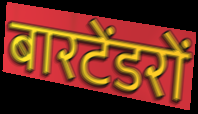
बारटेंडरों